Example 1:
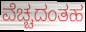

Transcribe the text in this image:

ವೆಚ್ಚದಂತಹ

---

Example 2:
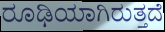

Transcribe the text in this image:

ರೂಢಿಯಾಗಿರುತ್ತದೆ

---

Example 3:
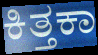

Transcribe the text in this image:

ಕಿತ್ತಕಾ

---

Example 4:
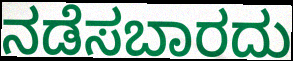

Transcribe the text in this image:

ನಡೆಸಬಾರದು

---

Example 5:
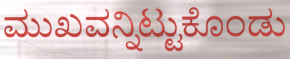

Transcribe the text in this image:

ಮುಖವನ್ನಿಟ್ಟುಕೊಂಡು